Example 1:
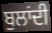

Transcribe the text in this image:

ਬੁਲਾਂਦੀ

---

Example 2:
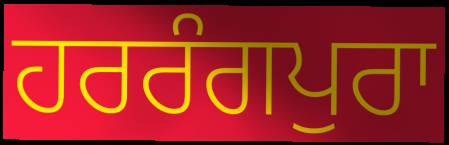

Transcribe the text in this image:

ਹਰਰੰਗਪੁਰਾ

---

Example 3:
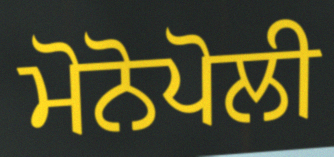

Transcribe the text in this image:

ਮੋਨੋਪੋਲੀ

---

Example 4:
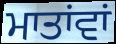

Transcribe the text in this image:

ਮਾਤਾਂਵਾਂ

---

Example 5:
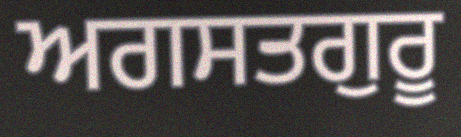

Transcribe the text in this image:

ਅਗਸਤਗੁਰੂ